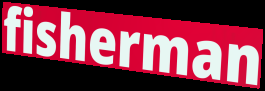
fisherman